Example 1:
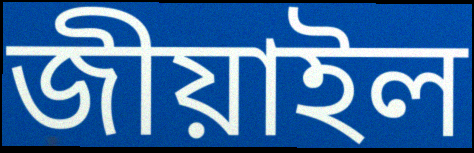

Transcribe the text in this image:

জীয়াইল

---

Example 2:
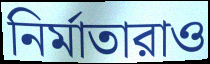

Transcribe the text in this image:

নির্মাতারাও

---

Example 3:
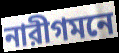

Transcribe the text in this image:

নারীগমনে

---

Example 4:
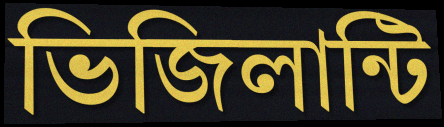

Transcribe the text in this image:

ভিজিলান্টি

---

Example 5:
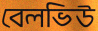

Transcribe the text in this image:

বেলভিউ